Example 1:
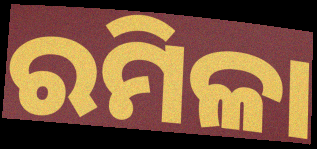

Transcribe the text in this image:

ରମିଳା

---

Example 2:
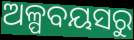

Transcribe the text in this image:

ଅଳ୍ପବୟସରୁ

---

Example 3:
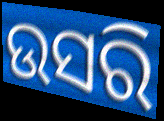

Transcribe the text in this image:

ଉସରି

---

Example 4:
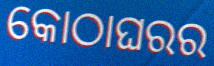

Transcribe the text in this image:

କୋଠାଘରର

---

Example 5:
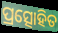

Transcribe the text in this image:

ପ୍ରତ୍ସୋହିତ